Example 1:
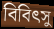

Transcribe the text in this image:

বিবিৎসু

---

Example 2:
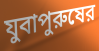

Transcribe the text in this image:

যুবাপুরুষের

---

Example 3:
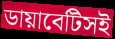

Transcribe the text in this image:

ডায়াবেটিসই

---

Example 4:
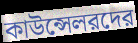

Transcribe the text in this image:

কাউন্সেলরদের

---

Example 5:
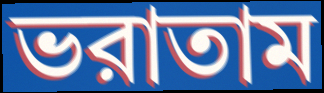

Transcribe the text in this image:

ভরাতাম